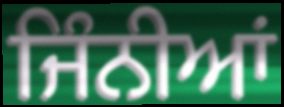
ਜਿੰਨੀਆਂ